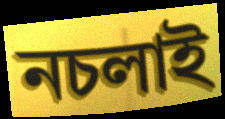
নচলাই